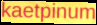
kaetpinum